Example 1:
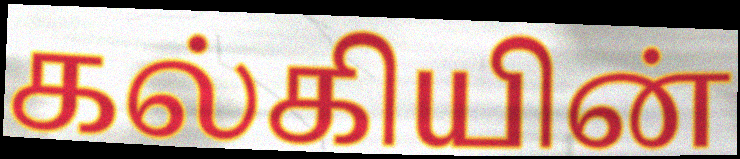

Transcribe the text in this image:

கல்கியின்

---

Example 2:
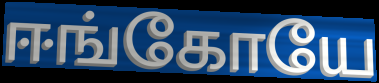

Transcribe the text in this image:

ஈங்கோயே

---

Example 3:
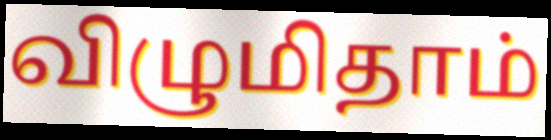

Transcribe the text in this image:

விழுமிதாம்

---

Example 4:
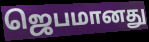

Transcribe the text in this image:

ஜெபமானது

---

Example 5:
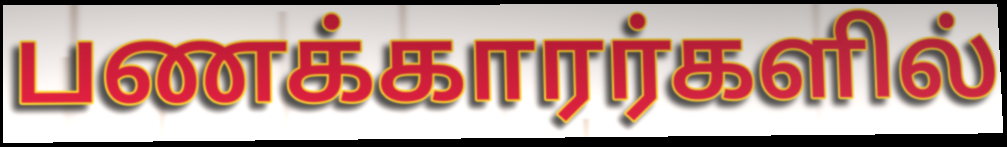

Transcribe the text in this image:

பணக்காரர்களில்